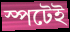
স্পটেই